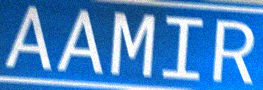
AAMIR